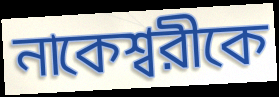
নাকেশ্বরীকে